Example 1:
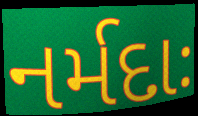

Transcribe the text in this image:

નર્મદાઃ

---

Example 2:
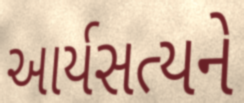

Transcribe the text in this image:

આર્યસત્યને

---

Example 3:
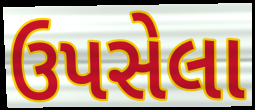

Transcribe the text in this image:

ઉપસેલા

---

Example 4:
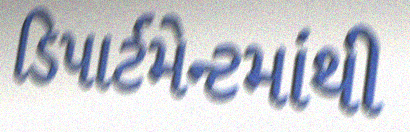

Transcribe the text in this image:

ડિપાર્ટમેન્ટમાંથી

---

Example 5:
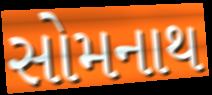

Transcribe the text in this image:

સોમનાથ